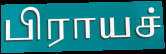
பிராயச்